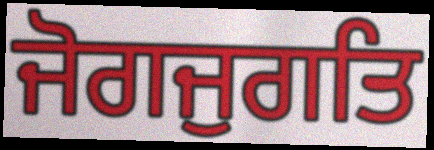
ਜੋਗਜੁਗਤਿ